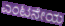
ಎಂಟನೇಯ